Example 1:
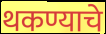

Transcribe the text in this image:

थकण्याचे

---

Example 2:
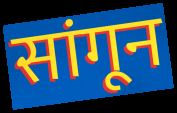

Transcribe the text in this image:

सांगून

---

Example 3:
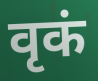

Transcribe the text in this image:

वृकं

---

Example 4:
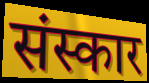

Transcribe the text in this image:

संस्कार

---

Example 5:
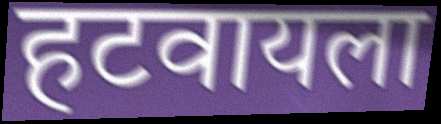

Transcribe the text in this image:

हटवायला